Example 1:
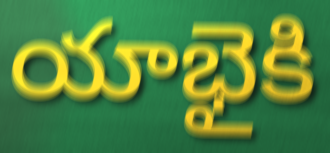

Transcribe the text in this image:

యాభైకి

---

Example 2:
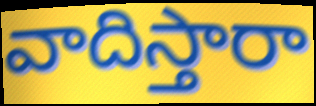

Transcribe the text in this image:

వాదిస్తారా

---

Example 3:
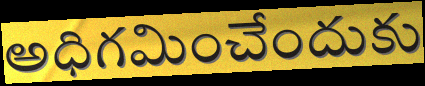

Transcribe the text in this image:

అధిగమించేందుకు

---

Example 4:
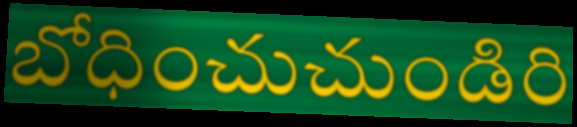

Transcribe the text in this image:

బోధించుచుండిరి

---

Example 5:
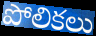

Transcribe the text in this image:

పోలికలు